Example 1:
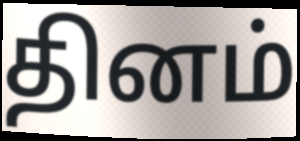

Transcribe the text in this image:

தினம்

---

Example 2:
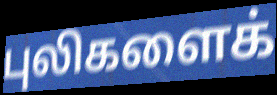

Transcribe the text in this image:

புலிகளைக்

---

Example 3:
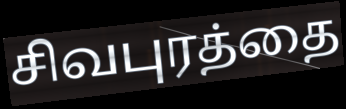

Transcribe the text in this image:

சிவபுரத்தை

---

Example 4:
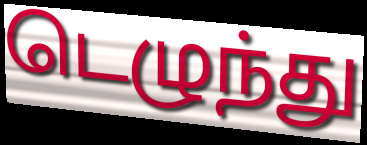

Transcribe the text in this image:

டெழுந்து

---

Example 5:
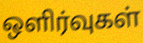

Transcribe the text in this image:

ஒளிர்வுகள்